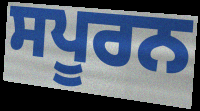
ਸਪੂਰਨ